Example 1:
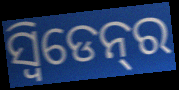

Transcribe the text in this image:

ସ୍ୱିଡେନ୍‍ର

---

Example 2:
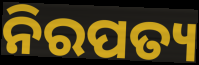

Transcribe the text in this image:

ନିରପତ୍ୟ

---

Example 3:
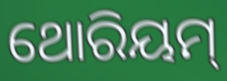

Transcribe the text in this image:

ଥୋରିୟମ୍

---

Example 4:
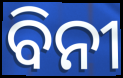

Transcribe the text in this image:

ବିନୀ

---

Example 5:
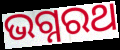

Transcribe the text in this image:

ଭଗ୍ନରଥ